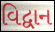
વિદ્વાન